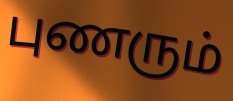
புணரும்